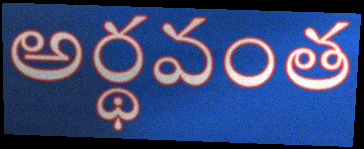
అర్థవంత